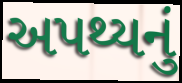
અપથ્યનું